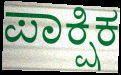
ಪಾಕ್ಷಿಕ